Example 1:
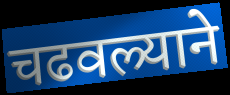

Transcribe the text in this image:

चढवल्याने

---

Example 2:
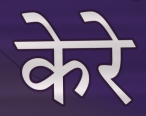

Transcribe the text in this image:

केरे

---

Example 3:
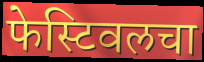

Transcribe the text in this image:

फेस्टिवलचा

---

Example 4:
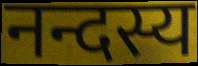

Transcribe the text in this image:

नन्दस्य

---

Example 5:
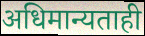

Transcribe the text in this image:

अधिमान्यताही